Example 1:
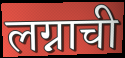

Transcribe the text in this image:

लग्नाची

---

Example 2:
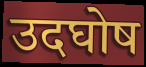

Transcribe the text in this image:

उदघोष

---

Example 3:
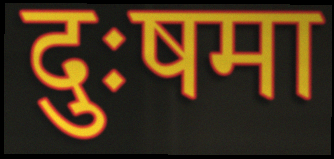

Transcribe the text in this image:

दुःषमा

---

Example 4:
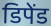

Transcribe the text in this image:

डिपेंड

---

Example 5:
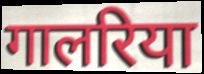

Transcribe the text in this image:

गालरिया